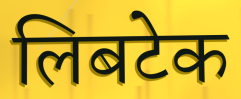
लिबटेक